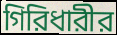
গিরিধারীর